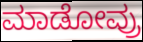
ಮಾಡೋವ್ರು